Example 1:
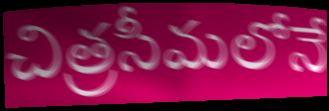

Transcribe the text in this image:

చిత్రసీమలోనే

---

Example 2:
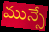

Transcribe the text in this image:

మున్సే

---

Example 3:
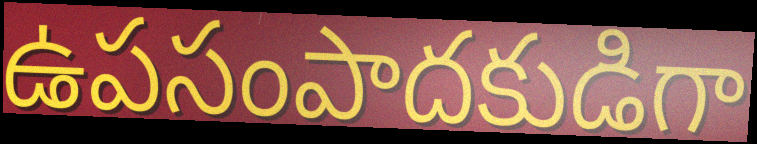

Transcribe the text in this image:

ఉపసంపాదకుడిగా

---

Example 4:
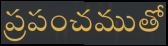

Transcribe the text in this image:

ప్రపంచముతో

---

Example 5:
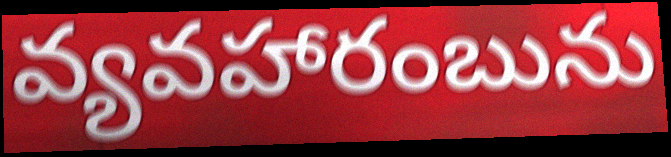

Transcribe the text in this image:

వ్యవహారంబును